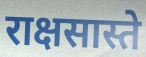
राक्षसास्ते